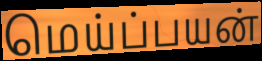
மெய்ப்பயன்